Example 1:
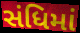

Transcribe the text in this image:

સંધિમાં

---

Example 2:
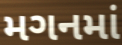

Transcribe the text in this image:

મગનમાં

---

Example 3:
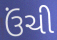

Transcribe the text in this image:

ઉંચી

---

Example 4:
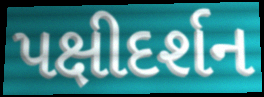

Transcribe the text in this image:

પક્ષીદર્શન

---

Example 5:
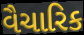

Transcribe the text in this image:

વૈચારિક